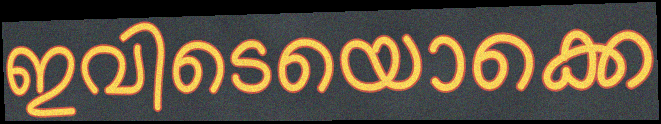
ഇവിടെയൊക്കെ